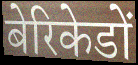
बेरिकेडों